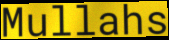
Mullahs